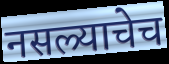
नसल्याचेच